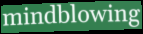
mindblowing